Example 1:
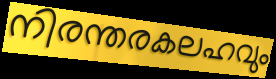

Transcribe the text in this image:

നിരന്തരകലഹവും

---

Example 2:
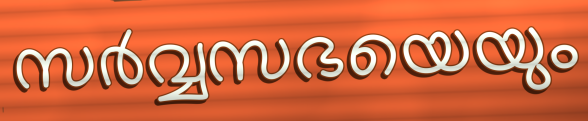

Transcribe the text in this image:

സർവ്വസഭയെയും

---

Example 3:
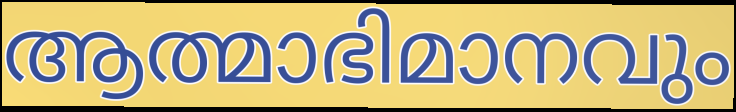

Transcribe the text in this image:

ആത്മാഭിമാനവും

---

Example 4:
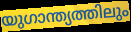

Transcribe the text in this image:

യുഗാന്ത്യത്തിലും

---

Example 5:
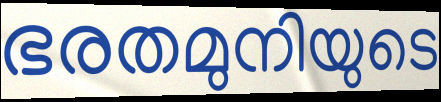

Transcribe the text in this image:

ഭരതമുനിയുടെ